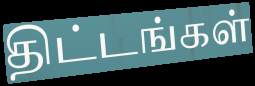
திட்டங்கள்